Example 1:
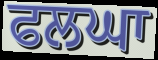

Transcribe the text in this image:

ਫਲਘਾ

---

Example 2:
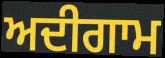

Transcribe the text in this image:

ਅਦੀਗਾਮ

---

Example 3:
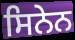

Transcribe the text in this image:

ਸਿਨੇਨ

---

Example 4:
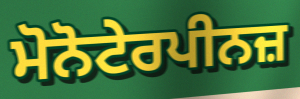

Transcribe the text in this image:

ਮੋਨੋਟੇਰਪੀਨਜ਼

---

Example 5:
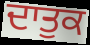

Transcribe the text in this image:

ਦਾਤੁਕ